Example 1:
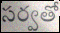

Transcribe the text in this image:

సర్వతో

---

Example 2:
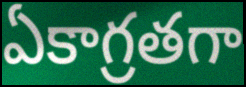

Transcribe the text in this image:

ఏకాగ్రతగా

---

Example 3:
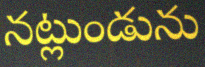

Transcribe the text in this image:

నట్లుండును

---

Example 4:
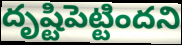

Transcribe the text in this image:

దృష్టిపెట్టిందని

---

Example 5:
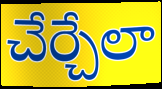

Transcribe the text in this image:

చేర్చేలా